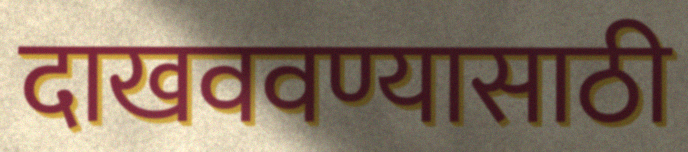
दाखववण्यासाठी